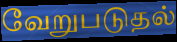
வேறுபடுதல்